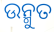
ଉନ୍ମୁତ